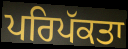
ਪਰਿਪੱਕਤਾ